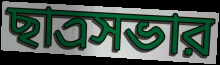
ছাত্রসভার